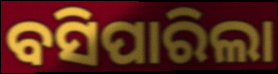
ବସିପାରିଲା